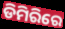
ଡିମିରିରେ